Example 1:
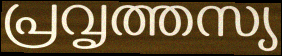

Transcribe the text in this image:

പ്രവൃത്തസ്യ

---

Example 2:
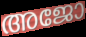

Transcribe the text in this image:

അജോ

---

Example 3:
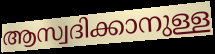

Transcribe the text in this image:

ആസ്വദിക്കാനുള്ള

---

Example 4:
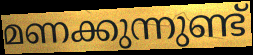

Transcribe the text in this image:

മണക്കുന്നുണ്ട്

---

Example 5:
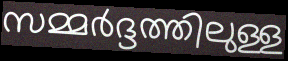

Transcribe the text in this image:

സമ്മർദ്ദത്തിലുള്ള